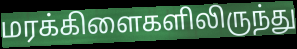
மரக்கிளைகளிலிருந்து